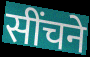
सींचने